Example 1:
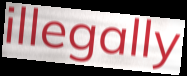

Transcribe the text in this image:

illegally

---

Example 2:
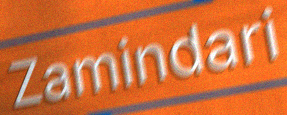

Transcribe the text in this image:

Zamindari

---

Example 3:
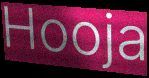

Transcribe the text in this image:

Hooja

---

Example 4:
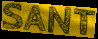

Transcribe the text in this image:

SANT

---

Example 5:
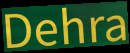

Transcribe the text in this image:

Dehra